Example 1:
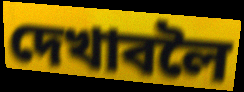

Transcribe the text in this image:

দেখাবলৈ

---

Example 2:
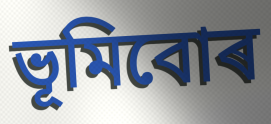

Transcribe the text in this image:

ভূমিবোৰ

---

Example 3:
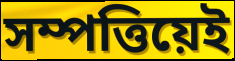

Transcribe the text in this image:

সম্পত্তিয়েই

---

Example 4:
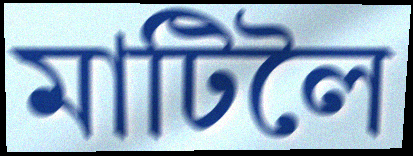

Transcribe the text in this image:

মাটিলৈ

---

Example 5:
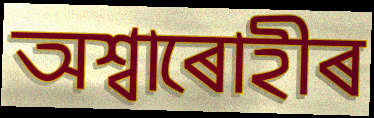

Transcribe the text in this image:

অশ্বাৰোহীৰ